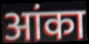
आंका